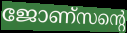
ജോണ്സന്റെ